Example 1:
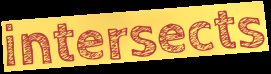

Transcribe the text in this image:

intersects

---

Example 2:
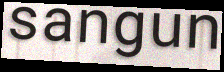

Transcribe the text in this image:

sangun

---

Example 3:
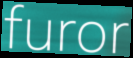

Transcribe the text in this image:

furor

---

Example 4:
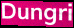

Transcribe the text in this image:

Dungri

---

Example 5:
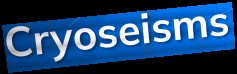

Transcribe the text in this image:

Cryoseisms